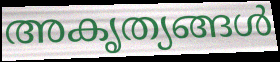
അകൃത്യങ്ങൾ